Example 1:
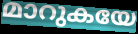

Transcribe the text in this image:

മാറുകയേ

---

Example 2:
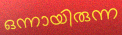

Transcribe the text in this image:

ഒന്നായിരുന്ന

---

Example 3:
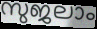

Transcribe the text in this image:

സുജലാം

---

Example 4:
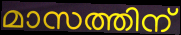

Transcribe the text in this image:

മാസത്തിന്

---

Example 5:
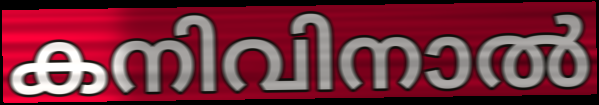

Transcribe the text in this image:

കനിവിനാൽ